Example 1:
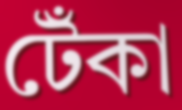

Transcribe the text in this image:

টেঁকা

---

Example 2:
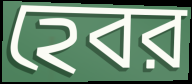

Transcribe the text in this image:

হেবর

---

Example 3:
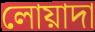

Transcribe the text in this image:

লোয়াদা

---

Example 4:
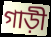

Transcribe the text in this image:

গাড়ী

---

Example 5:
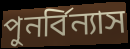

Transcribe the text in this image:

পুনর্বিন্যাস